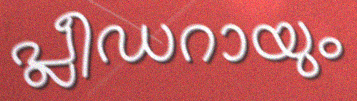
പ്ലീഡറായും